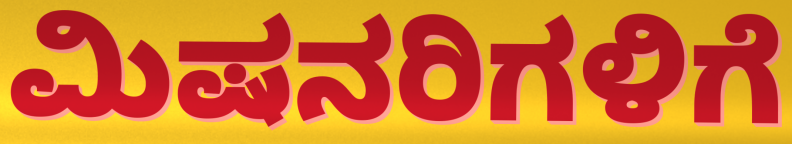
ಮಿಷನರಿಗಳಿಗೆ